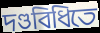
দণ্ডবিধিতে